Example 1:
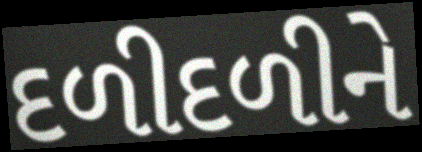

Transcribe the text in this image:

દળીદળીને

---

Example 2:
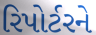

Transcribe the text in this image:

રિપોર્ટરને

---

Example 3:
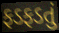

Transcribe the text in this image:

ફડફડતું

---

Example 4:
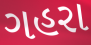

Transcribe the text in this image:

ગહરા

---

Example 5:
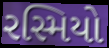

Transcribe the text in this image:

રસ્મિયો